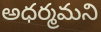
అధర్మమని